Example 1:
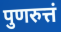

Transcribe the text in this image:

पुणरुत्तं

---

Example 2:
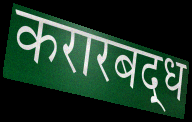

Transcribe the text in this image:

करारबद्ध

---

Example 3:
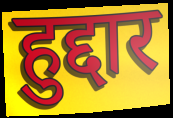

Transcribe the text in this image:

हुद्दार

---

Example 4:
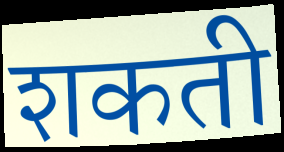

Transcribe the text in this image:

शकती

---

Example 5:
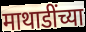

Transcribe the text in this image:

माथाडींच्या